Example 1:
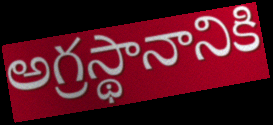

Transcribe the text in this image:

అగ్రస్థానానికి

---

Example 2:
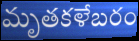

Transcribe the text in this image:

మృతకళేబరం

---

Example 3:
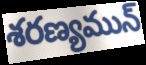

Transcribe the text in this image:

శరణ్యమున్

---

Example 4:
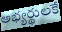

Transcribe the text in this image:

అభ్యర్థులకే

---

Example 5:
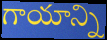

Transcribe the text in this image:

గాయాన్ని